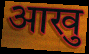
आखु